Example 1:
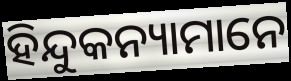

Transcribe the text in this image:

ହିନ୍ଦୁକନ୍ୟାମାନେ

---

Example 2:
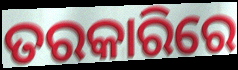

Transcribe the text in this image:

ତରକାରିରେ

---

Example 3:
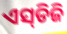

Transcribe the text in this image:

ଏସ୍‌ଡିଜି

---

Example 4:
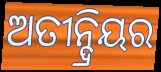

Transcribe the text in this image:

ଅତୀନ୍ଦ୍ରିୟର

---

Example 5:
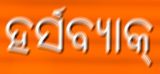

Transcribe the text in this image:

ହର୍ସବ୍ୟାକ୍